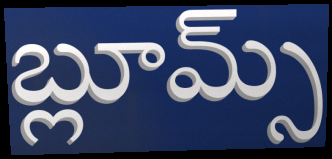
బ్లూమ్స్